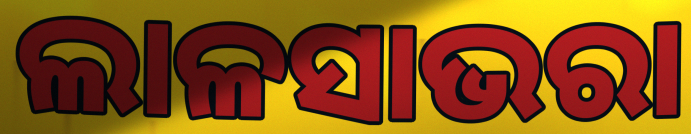
ଲାଳସାଭରା